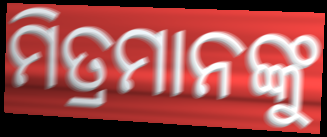
ମିତ୍ରମାନଙ୍କୁ